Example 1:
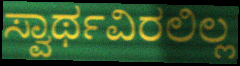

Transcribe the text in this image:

ಸ್ವಾರ್ಥವಿರಲಿಲ್ಲ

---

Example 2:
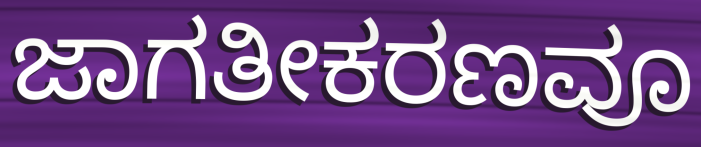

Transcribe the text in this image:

ಜಾಗತೀಕರಣವೂ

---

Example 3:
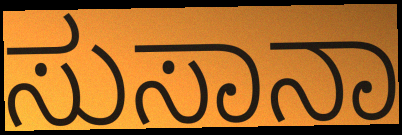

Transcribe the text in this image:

ಸುಸಾನಾ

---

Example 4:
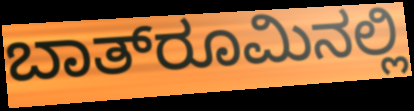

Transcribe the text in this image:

ಬಾತ್‌ರೂಮಿನಲ್ಲಿ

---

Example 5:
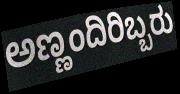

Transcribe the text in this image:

ಅಣ್ಣಂದಿರಿಬ್ಬರು